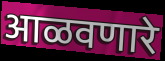
आळवणारे